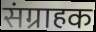
संग्राहक